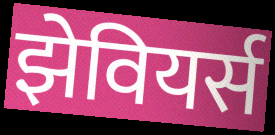
झेवियर्स